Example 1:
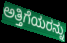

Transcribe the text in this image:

ಅತ್ತಿಗೆಯರನ್ನು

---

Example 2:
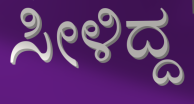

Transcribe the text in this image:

ಸೀಳಿದ್ದ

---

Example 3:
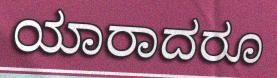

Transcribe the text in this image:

ಯಾರಾದರೂ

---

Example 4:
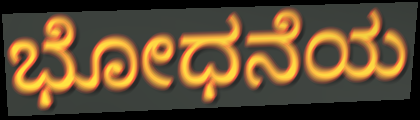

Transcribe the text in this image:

ಭೋಧನೆಯ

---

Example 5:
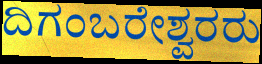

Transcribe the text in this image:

ದಿಗಂಬರೇಶ್ವರರು